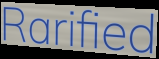
Rarified